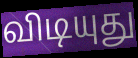
விடியுது